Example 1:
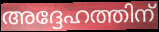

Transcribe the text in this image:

അദ്ദേഹത്തിന്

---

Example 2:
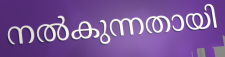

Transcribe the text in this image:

നൽകുന്നതായി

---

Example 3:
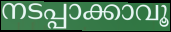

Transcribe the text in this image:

നടപ്പാക്കാവൂ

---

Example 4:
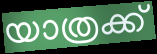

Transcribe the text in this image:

യാത്രക്ക്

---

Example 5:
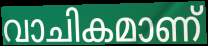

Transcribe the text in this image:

വാചികമാണ്